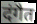
दंगैत